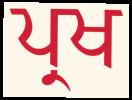
ਪ੍ਰਖ